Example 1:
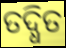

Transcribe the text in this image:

ତଦ୍ଧିତ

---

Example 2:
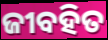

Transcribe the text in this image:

ଜୀବହିତ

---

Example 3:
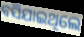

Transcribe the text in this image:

ବସିଯାଇଥିଲେ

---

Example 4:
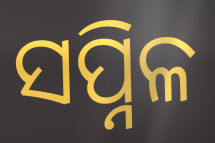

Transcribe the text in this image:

ସପ୍ନିଳ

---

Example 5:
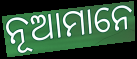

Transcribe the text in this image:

ନୂଆମାନେ